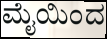
ಮೈಯಿಂದ